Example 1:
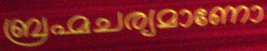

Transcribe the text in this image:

ബ്രഹ്മചര്യമാണോ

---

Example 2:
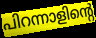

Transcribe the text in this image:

പിറന്നാളിന്റെ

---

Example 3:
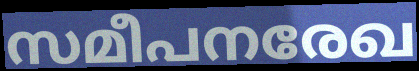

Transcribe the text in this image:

സമീപനരേഖ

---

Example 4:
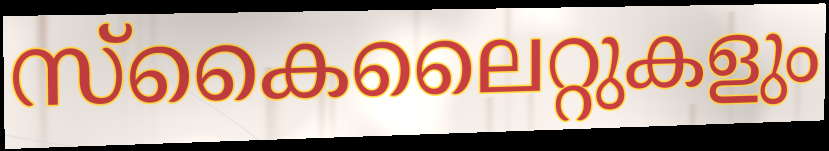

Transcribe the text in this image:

സ്കൈലൈറ്റുകളും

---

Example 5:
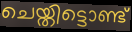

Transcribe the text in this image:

ചെയ്തിട്ടൊണ്ട്